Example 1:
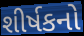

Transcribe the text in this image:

શીર્ષકનો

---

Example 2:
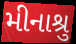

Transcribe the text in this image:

મીનાશ્રુ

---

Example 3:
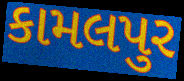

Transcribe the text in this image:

કામલપુર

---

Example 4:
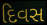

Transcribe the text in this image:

દિવસ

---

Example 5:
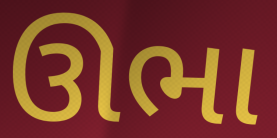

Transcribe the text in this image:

ઊભા